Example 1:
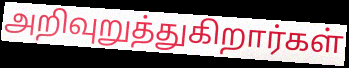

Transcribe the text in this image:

அறிவுறுத்துகிறார்கள்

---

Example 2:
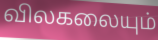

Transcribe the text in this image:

விலகலையும்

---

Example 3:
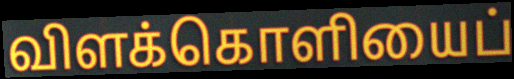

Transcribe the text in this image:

விளக்கொளியைப்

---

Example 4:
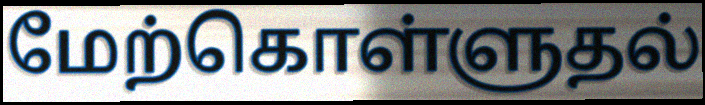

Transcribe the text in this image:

மேற்கொள்ளுதல்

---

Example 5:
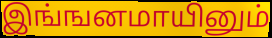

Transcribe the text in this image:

இங்ஙனமாயினும்